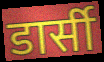
डार्सी